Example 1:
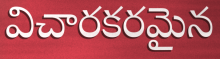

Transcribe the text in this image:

విచారకరమైన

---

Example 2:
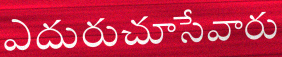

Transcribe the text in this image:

ఎదురుచూసేవారు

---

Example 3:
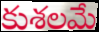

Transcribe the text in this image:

కుశలమే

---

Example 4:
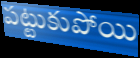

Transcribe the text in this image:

పట్టుకుపోయి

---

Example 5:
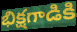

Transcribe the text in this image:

భిక్షగాడికి